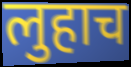
लुहाच